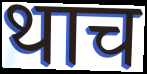
थाच